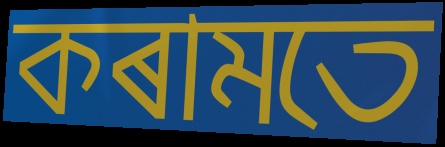
কৰামতে